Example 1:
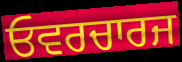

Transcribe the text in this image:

ਓਵਰਚਾਰਜ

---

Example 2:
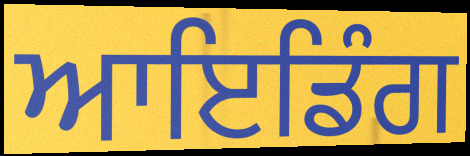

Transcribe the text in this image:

ਆਇਡਿੰਗ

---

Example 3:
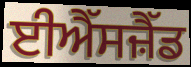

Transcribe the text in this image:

ਈਐੱਸਜ਼ੈੱਡ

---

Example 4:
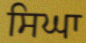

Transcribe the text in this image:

ਸਿਘਾ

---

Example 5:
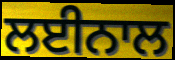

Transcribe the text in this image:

ਲਈਨਾਲ